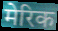
मेरिक